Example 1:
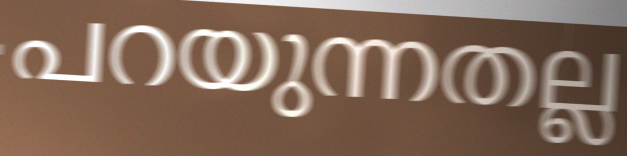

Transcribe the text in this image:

പറയുന്നതല്ല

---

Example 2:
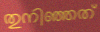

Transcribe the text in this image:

തുനിഞ്ഞത്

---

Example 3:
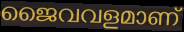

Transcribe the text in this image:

ജൈവവളമാണ്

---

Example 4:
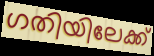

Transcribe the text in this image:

ഗതിയിലേക്ക്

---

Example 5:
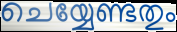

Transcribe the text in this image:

ചെയ്യേണ്ടതും